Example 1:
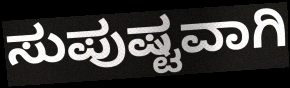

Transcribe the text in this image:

ಸುಪುಷ್ಟವಾಗಿ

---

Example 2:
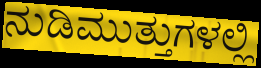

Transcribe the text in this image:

ನುಡಿಮುತ್ತುಗಳಲ್ಲಿ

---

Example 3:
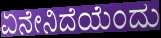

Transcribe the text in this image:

ಏನೇನಿದೆಯೆಂದು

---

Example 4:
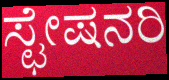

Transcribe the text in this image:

ಸ್ಟೇಷನರಿ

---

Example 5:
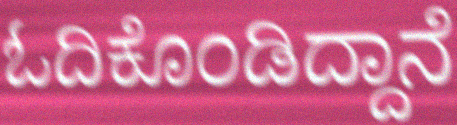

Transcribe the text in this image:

ಓದಿಕೊಂಡಿದ್ದಾನೆ